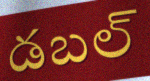
డబల్